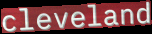
cleveland